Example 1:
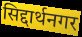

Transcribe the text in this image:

सिद्दार्थनगर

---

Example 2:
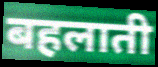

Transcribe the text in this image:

बहलाती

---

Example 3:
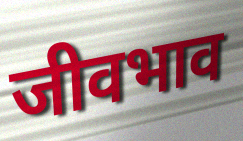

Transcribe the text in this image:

जीवभाव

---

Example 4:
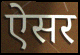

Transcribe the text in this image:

ऐसर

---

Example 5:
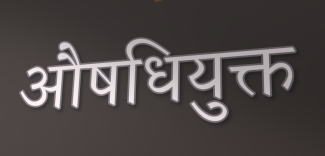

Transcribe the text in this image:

औषधियुक्त